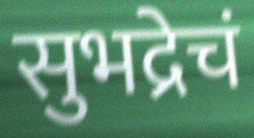
सुभद्रेचं